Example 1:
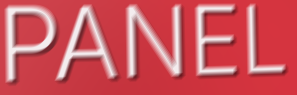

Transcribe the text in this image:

PANEL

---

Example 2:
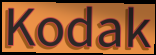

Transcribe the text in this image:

Kodak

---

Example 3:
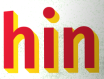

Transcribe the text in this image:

hin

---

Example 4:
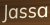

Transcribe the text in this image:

Jassa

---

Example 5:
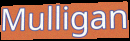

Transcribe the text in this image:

Mulligan